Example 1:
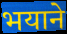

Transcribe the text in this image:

भयाने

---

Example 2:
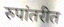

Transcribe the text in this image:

रुपांतरीत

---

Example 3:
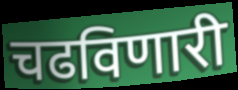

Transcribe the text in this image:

चढविणारी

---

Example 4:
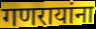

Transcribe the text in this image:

गणरायांना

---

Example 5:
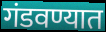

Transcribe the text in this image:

गंडवण्यात